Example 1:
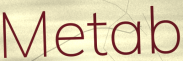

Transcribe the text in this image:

Metab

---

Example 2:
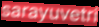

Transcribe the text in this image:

sarayuvetri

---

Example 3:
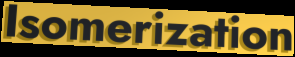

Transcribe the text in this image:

Isomerization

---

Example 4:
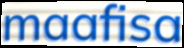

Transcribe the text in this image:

maafisa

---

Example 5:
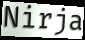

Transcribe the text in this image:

Nirja